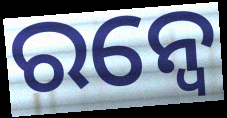
ରନ୍ୱେ